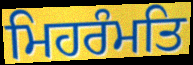
ਮਿਹਰੰਮਤਿ